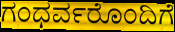
ಗಂಧರ್ವರೊಂದಿಗೆ